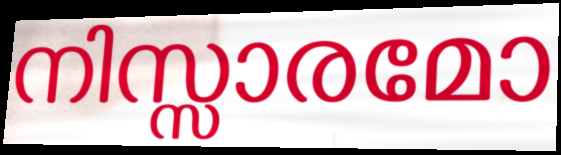
നിസ്സാരമോ